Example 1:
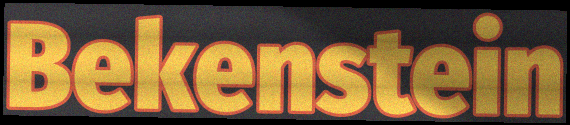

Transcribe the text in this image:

Bekenstein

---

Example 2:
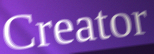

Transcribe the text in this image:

Creator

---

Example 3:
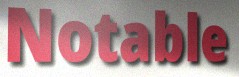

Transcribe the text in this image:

Notable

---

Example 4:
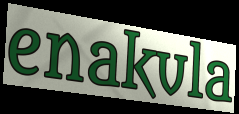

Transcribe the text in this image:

enakula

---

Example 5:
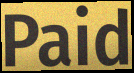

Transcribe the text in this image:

Paid